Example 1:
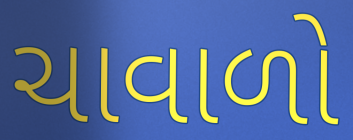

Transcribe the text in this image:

ચાવાળો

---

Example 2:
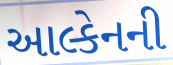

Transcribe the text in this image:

આલ્કેનની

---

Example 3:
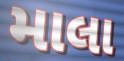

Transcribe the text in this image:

માલા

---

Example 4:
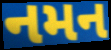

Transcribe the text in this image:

નમન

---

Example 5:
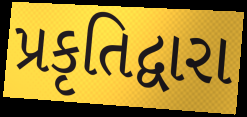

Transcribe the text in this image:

પ્રકૃતિદ્વારા